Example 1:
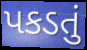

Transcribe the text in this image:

પકડતું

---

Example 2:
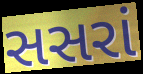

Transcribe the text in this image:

સસરાં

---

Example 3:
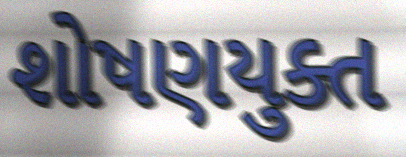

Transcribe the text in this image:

શોષણયુક્ત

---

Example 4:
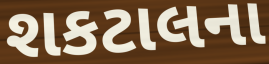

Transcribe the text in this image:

શકટાલના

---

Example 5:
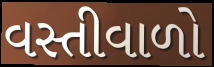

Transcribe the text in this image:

વસ્તીવાળો